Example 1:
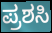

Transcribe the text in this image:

ಪ್ರಶಸಿ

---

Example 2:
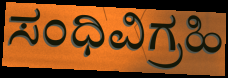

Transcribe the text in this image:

ಸಂಧಿವಿಗ್ರಹಿ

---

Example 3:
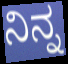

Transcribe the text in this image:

ನಿನ್ನ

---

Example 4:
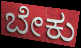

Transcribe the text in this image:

ಬೇಕು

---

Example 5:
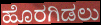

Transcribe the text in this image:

ಹೊರಗಿಡಲು